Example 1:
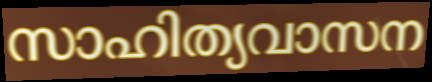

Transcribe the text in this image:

സാഹിത്യവാസന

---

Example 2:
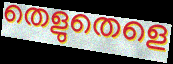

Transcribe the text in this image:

തെളുതെളെ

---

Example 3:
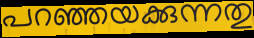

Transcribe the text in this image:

പറഞ്ഞയക്കുന്നതു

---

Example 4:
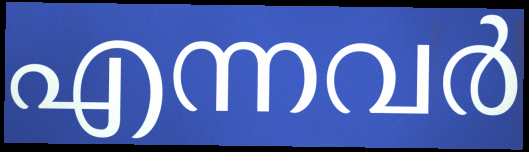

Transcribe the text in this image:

എന്നവർ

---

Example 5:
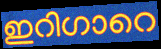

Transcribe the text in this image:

ഇറിഗാറെ